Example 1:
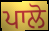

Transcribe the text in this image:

ਪਾਲੋ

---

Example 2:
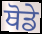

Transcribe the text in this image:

ਥੋਡੇ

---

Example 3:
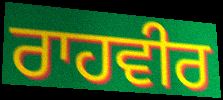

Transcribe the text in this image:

ਰਾਹਵੀਰ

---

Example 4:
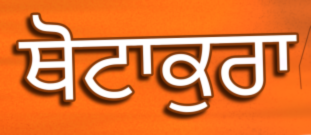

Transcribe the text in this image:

ਥੋਟਾਕੁਰਾ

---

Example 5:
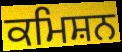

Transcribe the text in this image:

ਕਮਿਸ਼ਨ